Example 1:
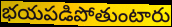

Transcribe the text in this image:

భయపడిపోతుంటారు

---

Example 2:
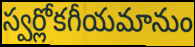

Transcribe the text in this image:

స్వర్లోకగీయమానుం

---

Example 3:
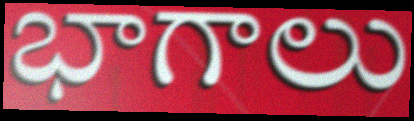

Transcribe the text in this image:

భాగాలు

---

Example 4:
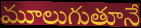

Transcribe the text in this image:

మూలుగుతూనే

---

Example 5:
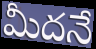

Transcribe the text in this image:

మీదనే